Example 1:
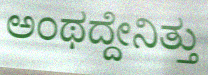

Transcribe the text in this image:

ಅಂಥದ್ದೇನಿತ್ತು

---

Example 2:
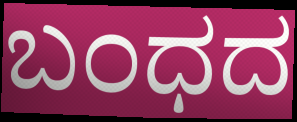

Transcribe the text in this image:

ಬಂಧದ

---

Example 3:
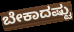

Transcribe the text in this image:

ಬೇಕಾದಷ್ಟು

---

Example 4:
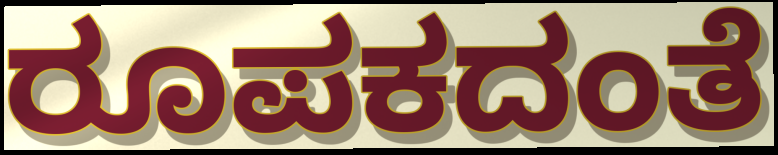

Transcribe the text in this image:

ರೂಪಕದಂತೆ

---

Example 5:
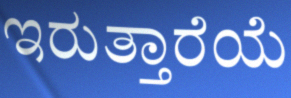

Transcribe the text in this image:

ಇರುತ್ತಾರೆಯೆ